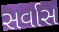
સર્વાસ